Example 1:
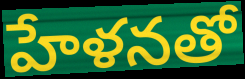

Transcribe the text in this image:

హేళనతో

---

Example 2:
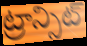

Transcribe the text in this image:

ట్రాన్సిట్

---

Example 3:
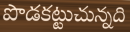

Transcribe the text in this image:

పొడకట్టుచున్నది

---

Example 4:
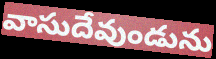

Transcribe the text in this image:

వాసుదేవుండును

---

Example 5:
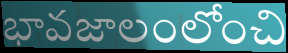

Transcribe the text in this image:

భావజాలంలోంచి